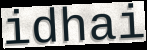
idhai